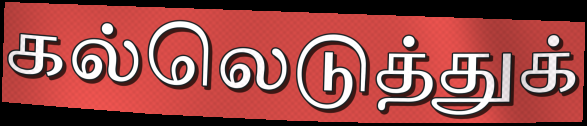
கல்லெடுத்துக்